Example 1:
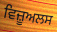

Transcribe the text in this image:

ਵਿਜ਼ੂਅਲਸ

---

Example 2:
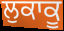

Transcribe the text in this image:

ਲੁਕਾਕੂ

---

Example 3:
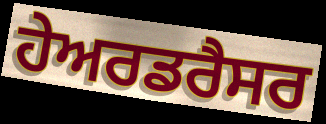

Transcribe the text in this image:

ਹੇਅਰਡਰੈਸਰ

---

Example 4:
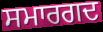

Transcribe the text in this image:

ਸਮਾਰਗਦ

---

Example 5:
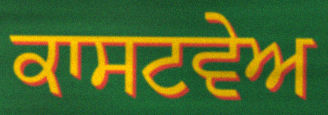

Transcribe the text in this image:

ਕਾਸਟਵੇਅ